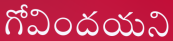
గోవిందయని